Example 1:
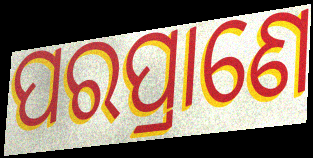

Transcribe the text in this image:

ପରପ୍ରାଣେ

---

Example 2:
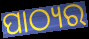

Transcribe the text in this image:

ପାଠ୍ୟର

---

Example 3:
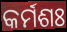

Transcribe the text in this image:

କର୍ମଶଃ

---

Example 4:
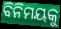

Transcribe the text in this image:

ବିନିମୟକୁ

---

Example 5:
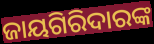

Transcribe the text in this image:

ଜାୟଗିରିଦାରଙ୍କ